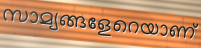
സാമ്യങ്ങളേറെയാണ്